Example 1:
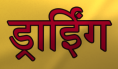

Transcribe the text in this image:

ड्राईिंग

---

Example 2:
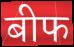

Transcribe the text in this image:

बीफ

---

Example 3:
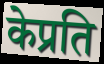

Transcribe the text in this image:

केप्रति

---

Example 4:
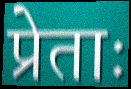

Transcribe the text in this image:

प्रेताः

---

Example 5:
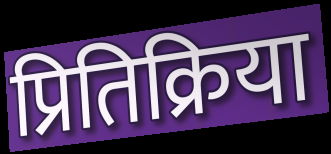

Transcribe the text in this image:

प्रितिक्रिया